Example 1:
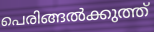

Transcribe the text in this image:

പെരിങ്ങൽക്കുത്ത്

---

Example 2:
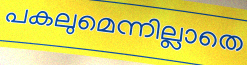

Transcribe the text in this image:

പകലുമെന്നില്ലാതെ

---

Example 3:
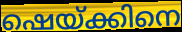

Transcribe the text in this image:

ഷെയ്ക്കിനെ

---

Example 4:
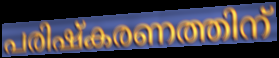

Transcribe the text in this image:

പരിഷ്കരണത്തിന്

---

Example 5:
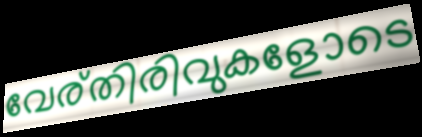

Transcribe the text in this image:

വേര്തിരിവുകളോടെ